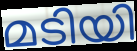
മടിയി